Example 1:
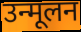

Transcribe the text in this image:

उन्‍मूलन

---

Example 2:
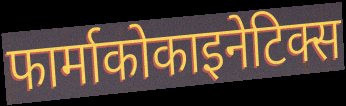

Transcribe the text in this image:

फार्माकोकाइनेटिक्स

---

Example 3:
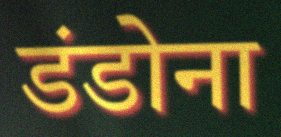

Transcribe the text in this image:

डंडोना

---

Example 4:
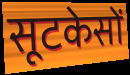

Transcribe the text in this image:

सूटकेसों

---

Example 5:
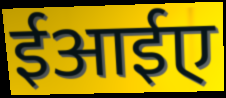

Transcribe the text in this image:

ईआईए